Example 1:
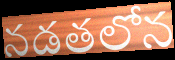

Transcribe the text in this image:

నడతలోన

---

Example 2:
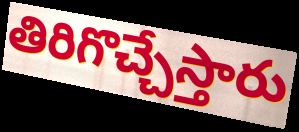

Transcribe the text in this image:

తిరిగొచ్చేస్తారు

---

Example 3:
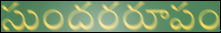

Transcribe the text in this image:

సుందరరూపం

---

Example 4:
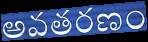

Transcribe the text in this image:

అవతరణం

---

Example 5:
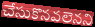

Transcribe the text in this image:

చేసుకొనవలెనని